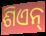
ଶିଏନ୍